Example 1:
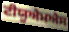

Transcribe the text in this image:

ਟੀਯੂਐਮਐਸ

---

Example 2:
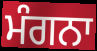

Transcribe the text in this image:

ਮੰਗਨਾ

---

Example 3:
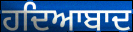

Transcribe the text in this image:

ਹਦਿਆਬਾਦ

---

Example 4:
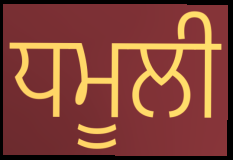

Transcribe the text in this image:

ਧਮੂਲੀ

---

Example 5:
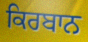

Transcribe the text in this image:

ਕਿਰਬਾਨ